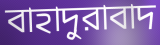
বাহাদুরাবাদ